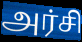
அர்சி